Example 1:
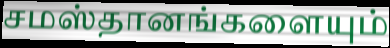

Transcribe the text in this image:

சமஸ்தானங்களையும்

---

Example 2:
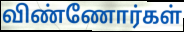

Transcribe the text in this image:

விண்ணோர்கள்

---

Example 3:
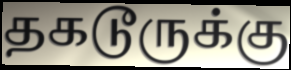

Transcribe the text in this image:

தகடூருக்கு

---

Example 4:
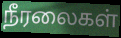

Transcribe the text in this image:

நீரலைகள்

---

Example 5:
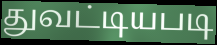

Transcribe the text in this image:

துவட்டியபடி